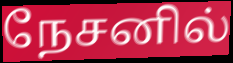
நேசனில்